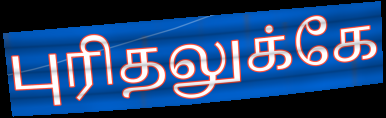
புரிதலுக்கே